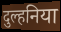
दुल्हनिया